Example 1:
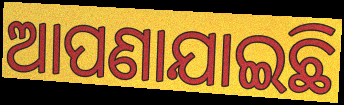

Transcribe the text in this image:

ଆପଣାଯାଇଛି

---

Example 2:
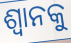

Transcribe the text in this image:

ଶ୍ଵାନକୁ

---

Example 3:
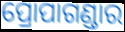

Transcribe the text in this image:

ପ୍ରୋପାଗଣ୍ଡାର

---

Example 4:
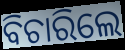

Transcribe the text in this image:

ବିଚାରିଲେ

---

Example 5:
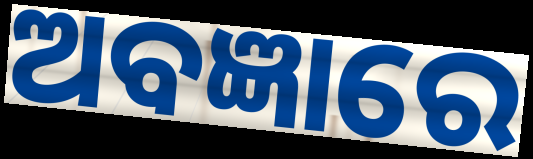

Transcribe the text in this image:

ଅବଜ୍ଞାରେ